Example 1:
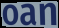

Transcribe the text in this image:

oan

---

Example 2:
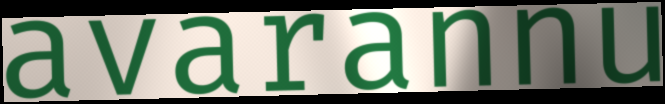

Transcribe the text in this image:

avarannu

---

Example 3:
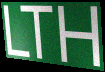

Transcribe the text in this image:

LTH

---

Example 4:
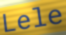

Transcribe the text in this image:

Lele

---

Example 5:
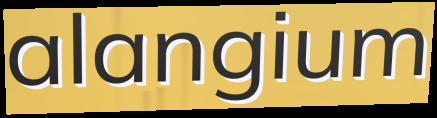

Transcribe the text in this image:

alangium